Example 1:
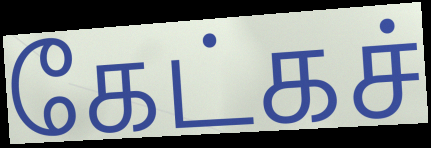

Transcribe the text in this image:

கேட்கச்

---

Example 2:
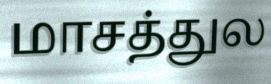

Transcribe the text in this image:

மாசத்துல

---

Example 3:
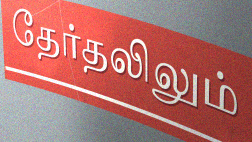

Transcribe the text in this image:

தேர்தலிலும்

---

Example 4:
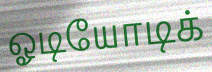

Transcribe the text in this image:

ஓடியோடிக்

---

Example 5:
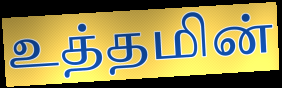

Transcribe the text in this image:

உத்தமின்